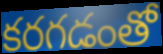
కరగడంతో